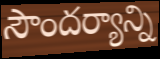
సౌందర్యాన్ని